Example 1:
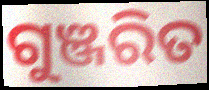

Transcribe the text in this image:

ଗୁଞ୍ଜରିତ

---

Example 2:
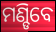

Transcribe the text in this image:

ମଣ୍ଡିବେ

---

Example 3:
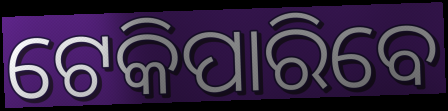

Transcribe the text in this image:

ଟେକିପାରିବେ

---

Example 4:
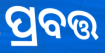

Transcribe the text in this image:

ପ୍ରବତ୍ତ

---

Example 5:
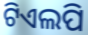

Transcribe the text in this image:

ଟିଏଲପି